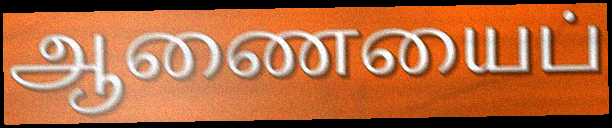
ஆணையைப்